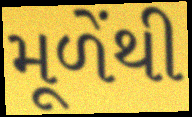
મૂળેંથી